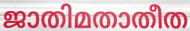
ജാതിമതാതീത